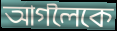
আগলৈকে